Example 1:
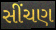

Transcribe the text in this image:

સીંચણ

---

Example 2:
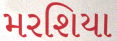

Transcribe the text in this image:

મરશિયા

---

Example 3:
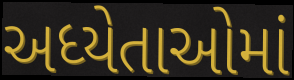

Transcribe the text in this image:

અધ્યેતાઓમાં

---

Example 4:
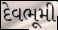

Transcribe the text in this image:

દેવભૂમી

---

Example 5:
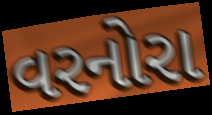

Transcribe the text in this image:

વરનોરા